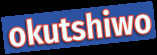
okutshiwo